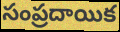
సంప్రదాయిక